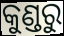
କୁଣ୍ଡରୁ